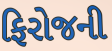
ફિરોજની